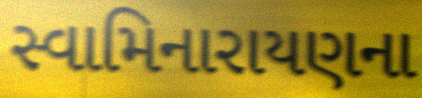
સ્વામિનારાયણના